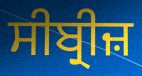
ਸੀਬ੍ਰੀਜ਼